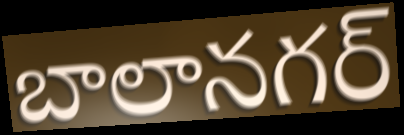
బాలానగర్